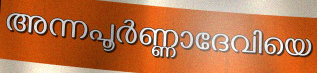
അന്നപൂർണ്ണാദേവിയെ